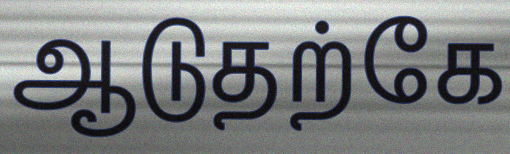
ஆடுதற்கே